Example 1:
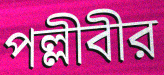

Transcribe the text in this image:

পল্লীবীর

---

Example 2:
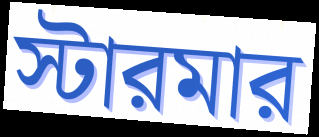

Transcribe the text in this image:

স্টারমার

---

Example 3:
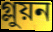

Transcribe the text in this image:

গ্লুয়ন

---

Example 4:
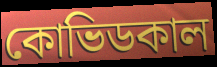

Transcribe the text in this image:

কোভিডকাল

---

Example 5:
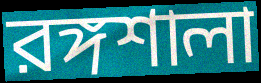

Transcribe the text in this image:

রঙ্গশালা